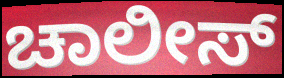
ಚಾಲೀಸ್